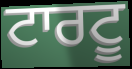
ਟਾਰਟੂ